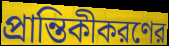
প্রান্তিকীকরণের